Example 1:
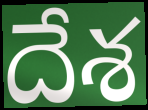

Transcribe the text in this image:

దేశ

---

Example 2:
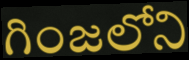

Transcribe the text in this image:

గింజలోని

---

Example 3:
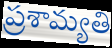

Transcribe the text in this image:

ప్రశామ్యతి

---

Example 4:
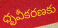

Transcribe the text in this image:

ధృవీకరణకు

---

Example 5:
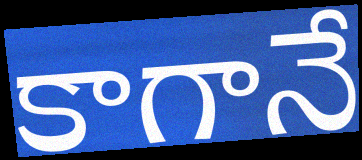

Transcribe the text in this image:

కాగానే